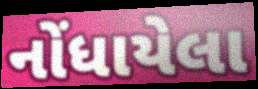
નોંધાયેલા